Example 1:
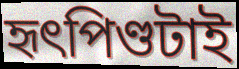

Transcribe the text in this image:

হৃৎপিণ্ডটাই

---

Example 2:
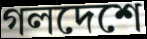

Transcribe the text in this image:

গলদেশে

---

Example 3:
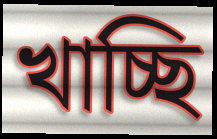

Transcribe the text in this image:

খাচ্ছি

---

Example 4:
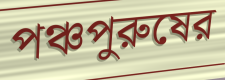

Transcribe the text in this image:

পঞ্চপুরুষের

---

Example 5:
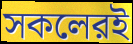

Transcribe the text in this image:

সকলেরই